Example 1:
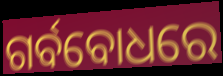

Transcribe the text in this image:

ଗର୍ବବୋଧରେ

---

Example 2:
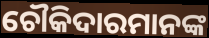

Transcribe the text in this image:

ଚୌକିଦାରମାନଙ୍କ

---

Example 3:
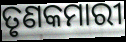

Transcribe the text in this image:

ତୃଣକମାରୀ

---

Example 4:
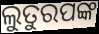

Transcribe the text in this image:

ଲୁତୁରପଙ୍କ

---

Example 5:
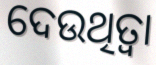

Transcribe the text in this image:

ଦେଉଥିତ୍ବା